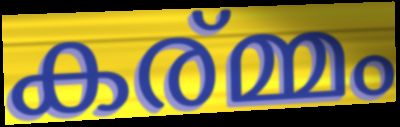
കര്മ്മം